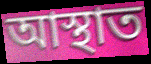
আস্থাত